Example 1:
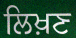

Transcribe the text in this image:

ਲਿਖ਼ਣ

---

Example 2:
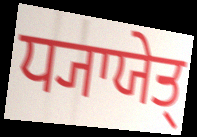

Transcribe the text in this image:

ਧ੍ਯਾਯੇਤ੍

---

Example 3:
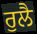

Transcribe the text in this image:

ਰੁਲੈ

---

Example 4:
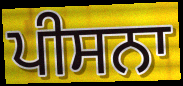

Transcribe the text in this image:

ਪੀਸਨਾ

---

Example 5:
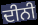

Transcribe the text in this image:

ਦੀਨੀ